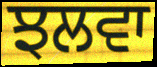
ਝਲਵਾ